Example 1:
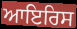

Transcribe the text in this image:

ਆਇਰਿਸ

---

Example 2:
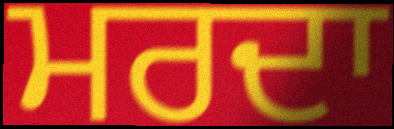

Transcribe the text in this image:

ਮਰਦਾ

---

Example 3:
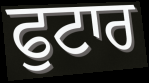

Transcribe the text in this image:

ਫੁਟਾਰ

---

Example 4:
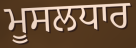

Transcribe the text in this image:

ਮੂਸਲਧਾਰ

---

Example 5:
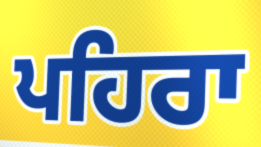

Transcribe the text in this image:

ਪਹਿਰਾ